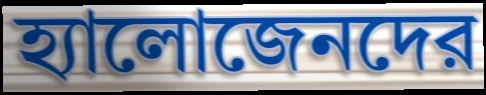
হ্যালোজেনদের